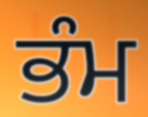
ਭੰਮ